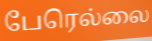
பேரெல்லை